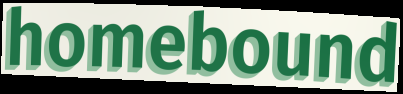
homebound